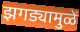
झगड्यामुळें